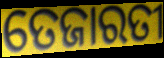
ତେଜାରତୀ